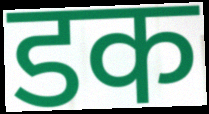
डक